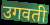
उगवती